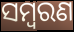
ସମ୍ୱରଣ